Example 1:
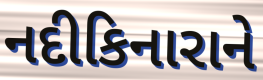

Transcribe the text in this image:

નદીકિનારાને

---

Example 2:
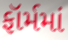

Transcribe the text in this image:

ફૉર્મમાં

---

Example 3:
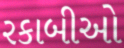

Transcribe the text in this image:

રકાબીઓ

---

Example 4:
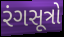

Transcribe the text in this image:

રંગસૂત્રો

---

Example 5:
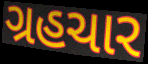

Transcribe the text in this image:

ગ્રહચાર